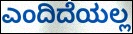
ಎಂದಿದೆಯಲ್ಲ